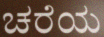
ಚರೆಯ